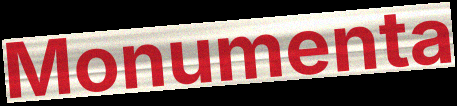
Monumenta